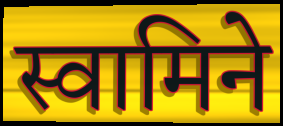
स्वामिने